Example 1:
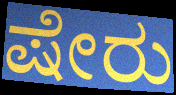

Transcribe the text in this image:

ಷೇರು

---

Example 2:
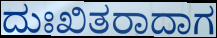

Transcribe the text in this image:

ದುಃಖಿತರಾದಾಗ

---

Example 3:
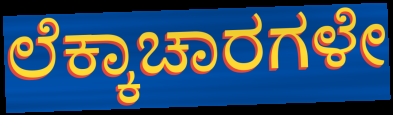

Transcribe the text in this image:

ಲೆಕ್ಕಾಚಾರಗಳೇ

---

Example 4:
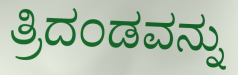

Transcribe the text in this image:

ತ್ರಿದಂಡವನ್ನು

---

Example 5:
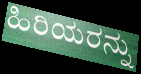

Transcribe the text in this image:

ಹಿರಿಯರನ್ನು